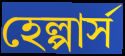
হেল্পার্স